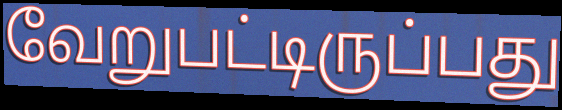
வேறுபட்டிருப்பது